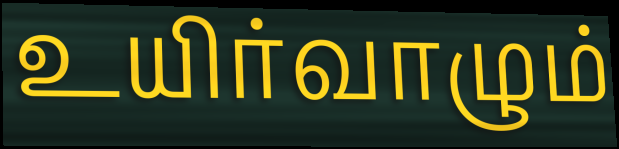
உயிர்வாழும்